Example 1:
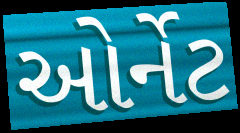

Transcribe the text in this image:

ઓર્નેટ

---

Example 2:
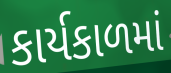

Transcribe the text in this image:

કાર્યકાળમાં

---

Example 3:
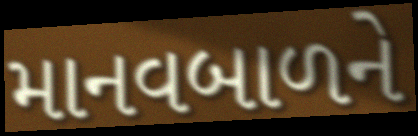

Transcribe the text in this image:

માનવબાળને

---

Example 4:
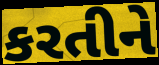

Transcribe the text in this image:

કરતીને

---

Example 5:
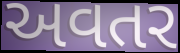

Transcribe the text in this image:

અવતર